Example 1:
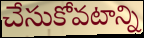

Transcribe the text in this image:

చేసుకోవటాన్ని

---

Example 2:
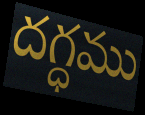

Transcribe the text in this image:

దగ్ధము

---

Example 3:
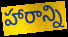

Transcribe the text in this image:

హారాన్ని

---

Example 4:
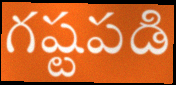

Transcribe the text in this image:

గష్టపడి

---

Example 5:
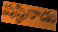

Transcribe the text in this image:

షష్ఠినాడు